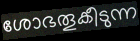
ശോഭതൂകീടുന്ന